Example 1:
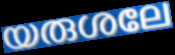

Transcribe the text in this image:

യരുശലേ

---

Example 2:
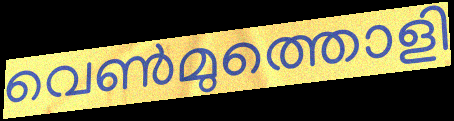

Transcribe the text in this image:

വെൺമുത്തൊളി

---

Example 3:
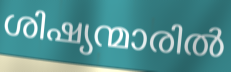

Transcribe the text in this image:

ശിഷ്യന്മാരിൽ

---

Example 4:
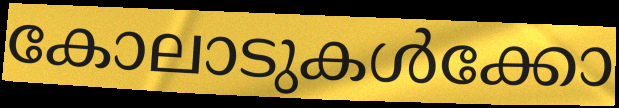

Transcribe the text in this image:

കോലാടുകൾക്കോ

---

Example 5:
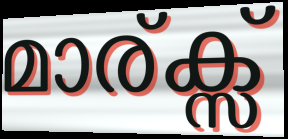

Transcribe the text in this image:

മാര്ക്സ്